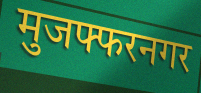
मुजफ्फरनगर